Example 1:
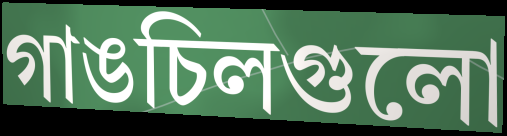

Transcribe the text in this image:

গাঙচিলগুলো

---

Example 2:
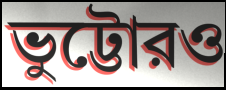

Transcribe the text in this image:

ভুট্টোরও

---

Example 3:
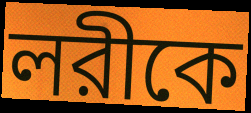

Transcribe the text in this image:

লরীকে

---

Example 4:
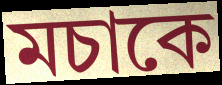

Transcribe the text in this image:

মচাকে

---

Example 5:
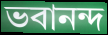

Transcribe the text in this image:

ভবানন্দ